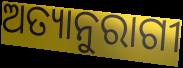
ଅତ୍ୟାନୁରାଗୀ